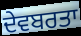
ਦੇਵਬਰਤਾ